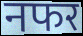
नफर